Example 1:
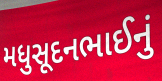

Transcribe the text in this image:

મધુસૂદનભાઈનું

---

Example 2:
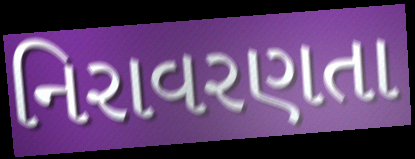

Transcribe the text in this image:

નિરાવરણતા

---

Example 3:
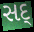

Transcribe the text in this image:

સદ્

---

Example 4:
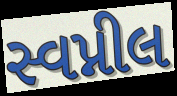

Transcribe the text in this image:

સ્વપ્નીલ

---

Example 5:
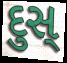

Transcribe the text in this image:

દુસ્